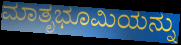
ಮಾತೃಭೂಮಿಯನ್ನು